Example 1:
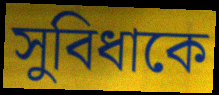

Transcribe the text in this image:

সুবিধাকে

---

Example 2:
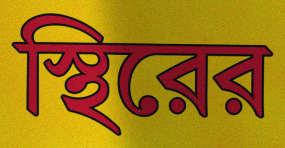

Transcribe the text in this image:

স্থিরের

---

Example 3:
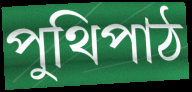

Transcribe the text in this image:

পুথিপাঠ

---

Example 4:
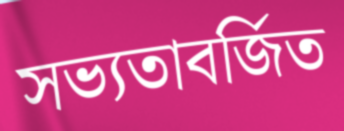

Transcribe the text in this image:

সভ্যতাবর্জিত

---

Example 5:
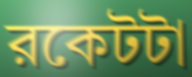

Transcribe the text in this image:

রকেটটা